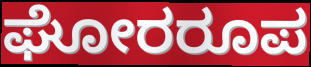
ಘೋರರೂಪ